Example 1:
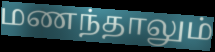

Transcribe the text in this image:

மணந்தாலும்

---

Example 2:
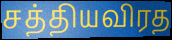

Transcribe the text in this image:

சத்தியவிரத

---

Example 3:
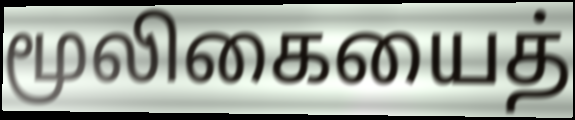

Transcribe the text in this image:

மூலிகையைத்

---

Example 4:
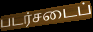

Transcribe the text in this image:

படர்சடைப்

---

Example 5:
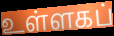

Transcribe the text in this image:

உள்ளகப்